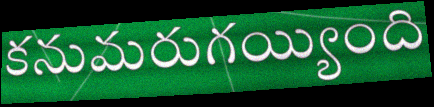
కనుమరుగయ్యింది